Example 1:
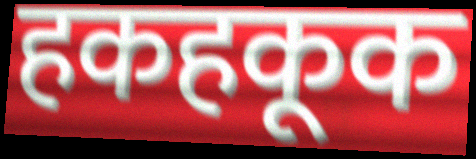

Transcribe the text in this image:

हकहकूक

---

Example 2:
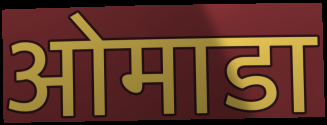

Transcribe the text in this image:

ओमाडा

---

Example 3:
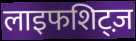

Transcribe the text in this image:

लाइफशिट्ज़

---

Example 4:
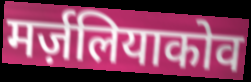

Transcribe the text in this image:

मर्ज़लियाकोव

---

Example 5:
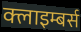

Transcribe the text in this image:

क्लाइम्बर्स